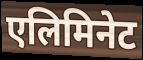
एलिमिनेट